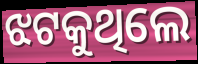
ଝଟକୁଥିଲେ